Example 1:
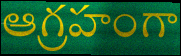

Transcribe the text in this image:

ఆగ్రహంగా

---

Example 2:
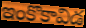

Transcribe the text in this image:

ఇంకొకావిడ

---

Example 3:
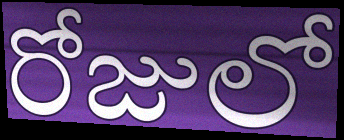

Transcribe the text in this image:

రోజులో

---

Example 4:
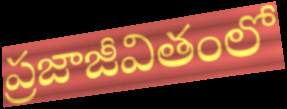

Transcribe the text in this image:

ప్రజాజీవితంలో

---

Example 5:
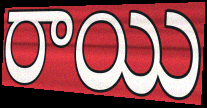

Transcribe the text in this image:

రాయి